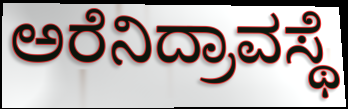
ಅರೆನಿದ್ರಾವಸ್ಥೆ